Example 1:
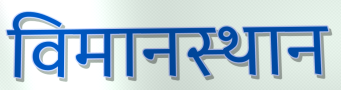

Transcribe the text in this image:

विमानस्थान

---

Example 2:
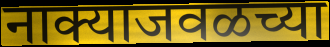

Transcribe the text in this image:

नाक्याजवळच्या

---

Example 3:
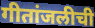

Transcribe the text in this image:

गीतांजलीची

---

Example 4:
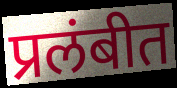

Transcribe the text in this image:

प्रलंबीत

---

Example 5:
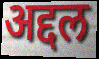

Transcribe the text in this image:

अद्दल